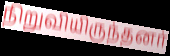
நிறுவியிருந்தனர்